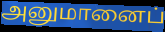
அனுமானைப்